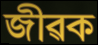
জীৱক